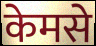
केमसे